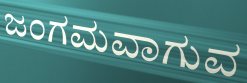
ಜಂಗಮವಾಗುವ